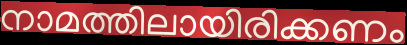
നാമത്തിലായിരിക്കണം